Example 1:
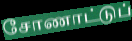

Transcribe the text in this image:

சோணாட்டுப்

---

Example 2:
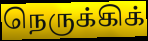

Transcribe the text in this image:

நெருக்கிக்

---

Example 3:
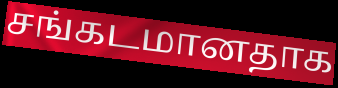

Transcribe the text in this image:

சங்கடமானதாக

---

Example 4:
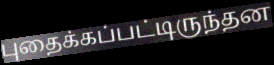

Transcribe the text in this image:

புதைக்கப்பட்டிருந்தன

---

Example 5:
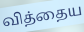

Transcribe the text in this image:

வித்தைய